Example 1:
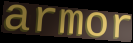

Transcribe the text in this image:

armor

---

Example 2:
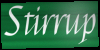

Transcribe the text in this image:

Stirrup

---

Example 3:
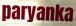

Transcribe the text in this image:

paryanka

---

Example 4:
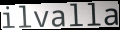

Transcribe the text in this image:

ilvalla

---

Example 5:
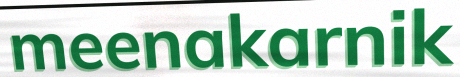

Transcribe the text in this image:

meenakarnik